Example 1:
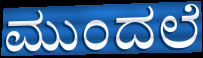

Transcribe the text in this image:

ಮುಂದಲೆ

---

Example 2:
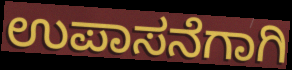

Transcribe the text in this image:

ಉಪಾಸನೆಗಾಗಿ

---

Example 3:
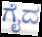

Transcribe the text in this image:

ಗೈದ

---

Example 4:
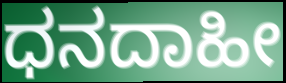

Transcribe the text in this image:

ಧನದಾಹೀ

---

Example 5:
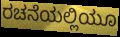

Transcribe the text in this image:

ರಚನೆಯಲ್ಲಿಯೂ